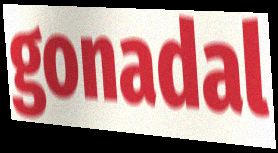
gonadal